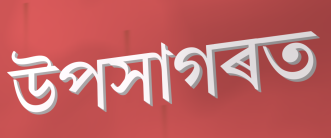
উপসাগৰত